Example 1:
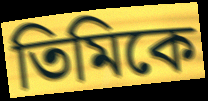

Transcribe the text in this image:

তিমিকে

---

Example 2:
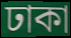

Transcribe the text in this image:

ঢাকা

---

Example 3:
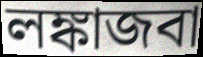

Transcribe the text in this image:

লঙ্কাজবা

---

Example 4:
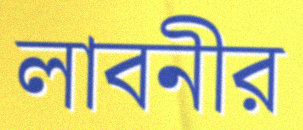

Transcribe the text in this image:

লাবনীর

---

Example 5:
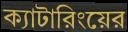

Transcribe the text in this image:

ক্যাটারিংয়ের